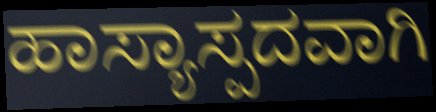
ಹಾಸ್ಯಾಸ್ಪದವಾಗಿ